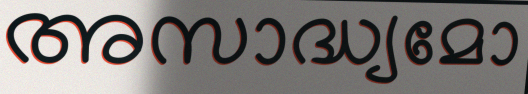
അസാദ്ധ്യമോ